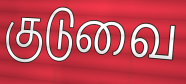
குடுவை